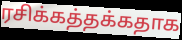
ரசிக்கத்தக்கதாக